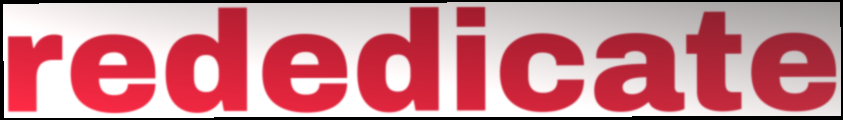
rededicate